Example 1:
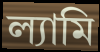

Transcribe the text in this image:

ল্যামি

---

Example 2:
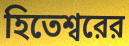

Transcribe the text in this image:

হিতেশ্বরের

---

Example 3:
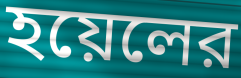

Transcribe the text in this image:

হয়েলের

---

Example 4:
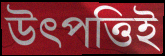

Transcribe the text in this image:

উৎপত্তিই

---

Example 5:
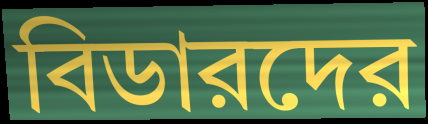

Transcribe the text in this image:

বিডারদের